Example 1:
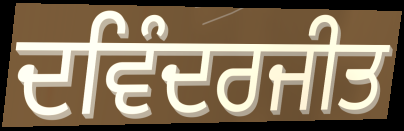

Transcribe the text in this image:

ਦਵਿੰਦਰਜੀਤ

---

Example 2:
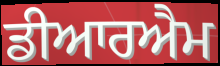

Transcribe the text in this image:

ਡੀਆਰਐਮ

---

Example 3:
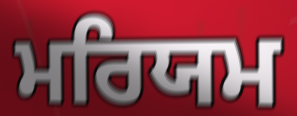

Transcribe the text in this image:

ਮਰਿਯਮ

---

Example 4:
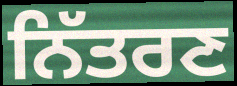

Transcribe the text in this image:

ਨਿੱਤਰਣ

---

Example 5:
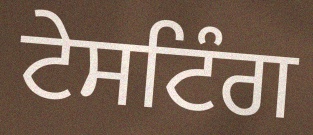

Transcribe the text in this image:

ਟੇਸਟਿੰਗ